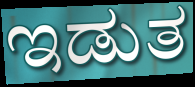
ಇಡುತ